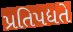
પ્રતિપદ્યતે